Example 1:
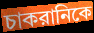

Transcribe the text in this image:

চাকরানিকে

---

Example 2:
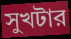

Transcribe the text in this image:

সুখটার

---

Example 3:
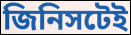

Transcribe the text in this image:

জিনিসটেই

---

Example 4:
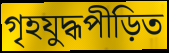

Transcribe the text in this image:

গৃহযুদ্ধপীড়িত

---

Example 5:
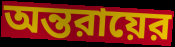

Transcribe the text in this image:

অন্তরায়ের